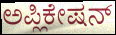
ಅಪ್ಲಿಕೇಷನ್